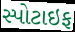
સ્પોટાઇફ